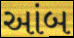
આંબ